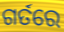
ଗର୍ତରେ